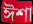
ঈশা